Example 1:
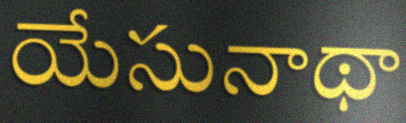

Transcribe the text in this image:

యేసునాథా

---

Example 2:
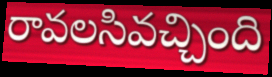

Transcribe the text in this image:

రావలసివచ్చింది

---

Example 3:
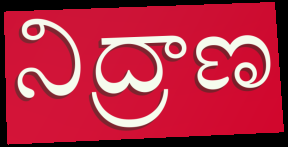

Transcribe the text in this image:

నిద్రాణ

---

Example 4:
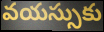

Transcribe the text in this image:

వయస్సుకు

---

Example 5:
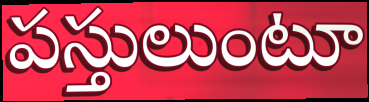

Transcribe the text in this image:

పస్తులుంటూ